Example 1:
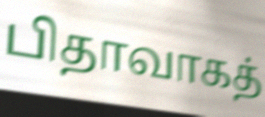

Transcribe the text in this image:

பிதாவாகத்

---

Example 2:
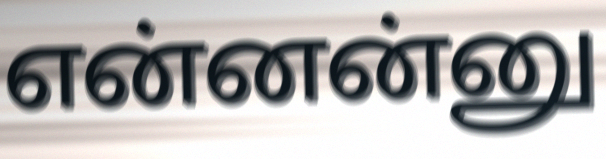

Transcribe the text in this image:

என்னன்னு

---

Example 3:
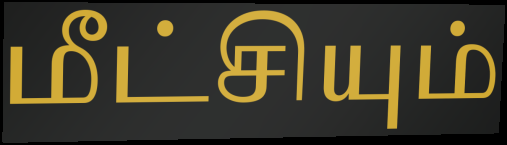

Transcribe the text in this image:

மீட்சியும்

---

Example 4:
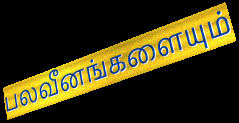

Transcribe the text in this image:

பலவீனங்களையும்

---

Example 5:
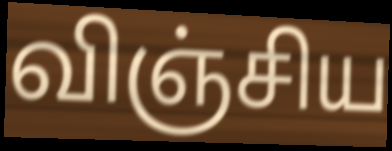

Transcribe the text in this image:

விஞ்சிய